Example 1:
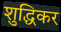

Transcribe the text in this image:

शुद्धिकर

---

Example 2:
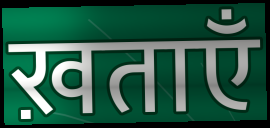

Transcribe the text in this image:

ख़ताएँ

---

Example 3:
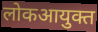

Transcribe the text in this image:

लोकआयुक्त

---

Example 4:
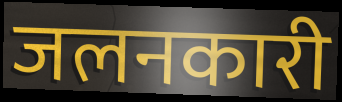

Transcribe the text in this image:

जलनकारी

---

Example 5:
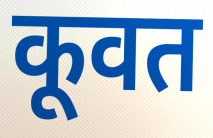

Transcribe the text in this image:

कूवत